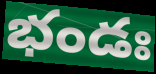
భండః